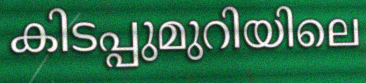
കിടപ്പുമുറിയിലെ